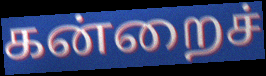
கன்றைச்